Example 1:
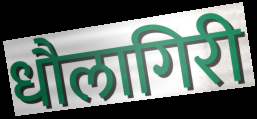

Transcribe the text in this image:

धौलागिरी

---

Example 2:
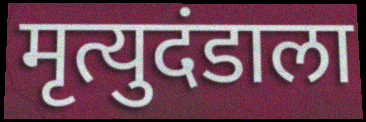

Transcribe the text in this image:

मृत्युदंडाला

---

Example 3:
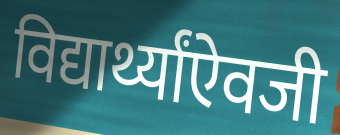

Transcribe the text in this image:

विद्यार्थ्यांऐवजी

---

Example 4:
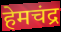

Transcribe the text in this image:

हेमचंद्र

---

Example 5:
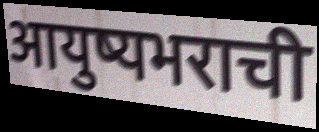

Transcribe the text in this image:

आयुष्यभराची